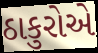
ઠાકુરોએ